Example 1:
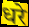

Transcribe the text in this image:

धरे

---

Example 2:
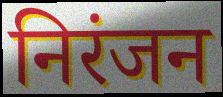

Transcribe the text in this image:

निरंजन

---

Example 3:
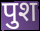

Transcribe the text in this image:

पुश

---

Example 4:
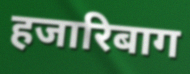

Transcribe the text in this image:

हजारिबाग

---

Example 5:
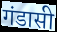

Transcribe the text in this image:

गंडासी